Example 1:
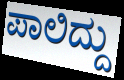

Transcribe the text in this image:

ಪಾಲಿದ್ದು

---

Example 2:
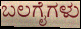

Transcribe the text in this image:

ಬಲಗೈಗಳು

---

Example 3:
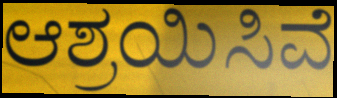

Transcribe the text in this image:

ಆಶ್ರಯಿಸಿವೆ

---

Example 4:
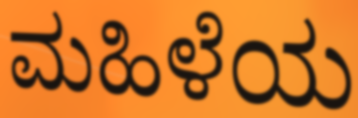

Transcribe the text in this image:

ಮಹಿಳೆಯ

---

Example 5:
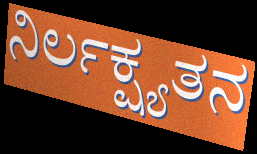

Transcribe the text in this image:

ನಿರ್ಲಕ್ಷ್ಯತನ